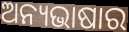
ଅନ୍ୟଭାଷାର